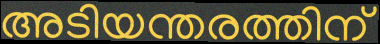
അടിയന്തരത്തിന്